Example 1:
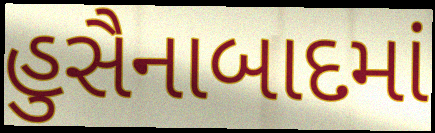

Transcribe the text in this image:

હુસૈનાબાદમાં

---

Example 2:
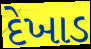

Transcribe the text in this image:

દેખાડ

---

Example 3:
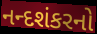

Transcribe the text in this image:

નન્દશંકરનો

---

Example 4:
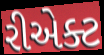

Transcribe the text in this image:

રીએક્ટ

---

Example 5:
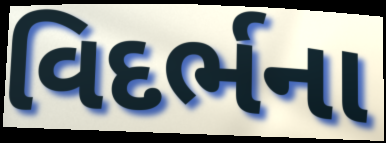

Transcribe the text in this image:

વિદર્ભના